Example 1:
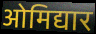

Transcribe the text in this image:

ओमिद्यार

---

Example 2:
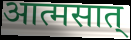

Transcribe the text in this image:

आत्मसात्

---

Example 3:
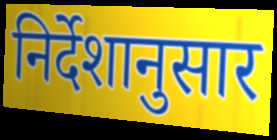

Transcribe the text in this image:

निर्देशानुसार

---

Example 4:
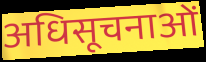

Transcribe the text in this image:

अधिसूचनाओं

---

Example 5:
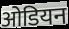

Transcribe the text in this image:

ओडियन